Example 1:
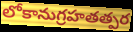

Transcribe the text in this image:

లోకానుగ్రహతత్పర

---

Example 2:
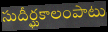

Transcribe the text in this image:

సుదీర్ఘకాలంపాటు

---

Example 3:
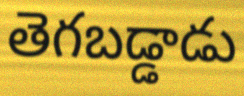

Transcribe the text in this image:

తెగబడ్డాడు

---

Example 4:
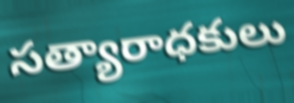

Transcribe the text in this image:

సత్యారాధకులు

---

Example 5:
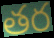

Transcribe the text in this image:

తర